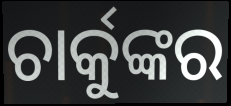
ଚାର୍କୁଙ୍କର